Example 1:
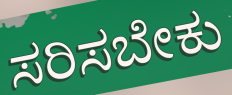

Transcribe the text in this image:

ಸರಿಸಬೇಕು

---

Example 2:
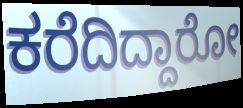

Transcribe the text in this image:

ಕರೆದಿದ್ದಾರೋ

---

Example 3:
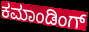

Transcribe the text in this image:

ಕಮಾಂಡಿಂಗ್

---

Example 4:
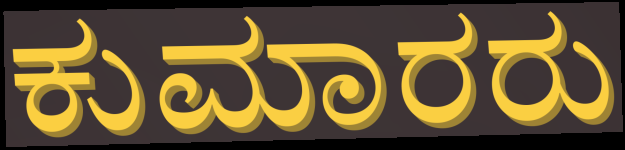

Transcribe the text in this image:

ಕುಮಾರರು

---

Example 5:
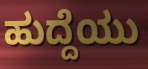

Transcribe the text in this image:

ಹುದ್ದೆಯು